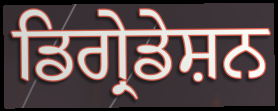
ਡਿਗ੍ਰੇਡੇਸ਼ਨ